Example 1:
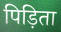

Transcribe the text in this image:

पिड़िता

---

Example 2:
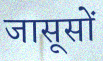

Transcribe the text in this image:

जासूसों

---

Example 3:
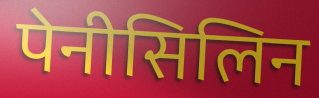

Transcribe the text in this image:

पेनीसिलिन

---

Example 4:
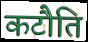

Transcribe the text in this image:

कटौति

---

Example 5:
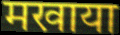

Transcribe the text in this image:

मखाया